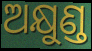
ଅକ୍ଷୁଣ୍ଡ